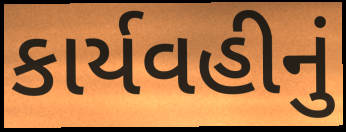
કાર્યવહીનું